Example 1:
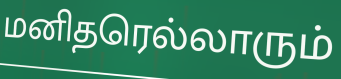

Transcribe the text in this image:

மனிதரெல்லாரும்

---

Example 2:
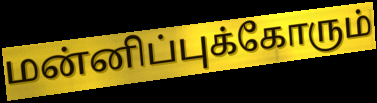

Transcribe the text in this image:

மன்னிப்புக்கோரும்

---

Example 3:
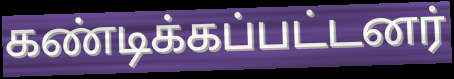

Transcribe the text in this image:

கண்டிக்கப்பட்டனர்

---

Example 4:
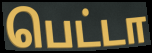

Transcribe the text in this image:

பெட்டா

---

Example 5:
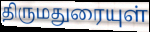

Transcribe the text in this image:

திருமதுரையுள்